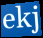
ekj